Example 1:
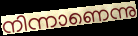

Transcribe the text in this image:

നിന്നാണെന്നു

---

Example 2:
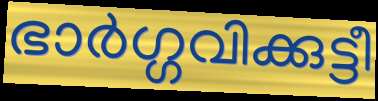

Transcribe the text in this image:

ഭാർഗ്ഗവിക്കുട്ടീ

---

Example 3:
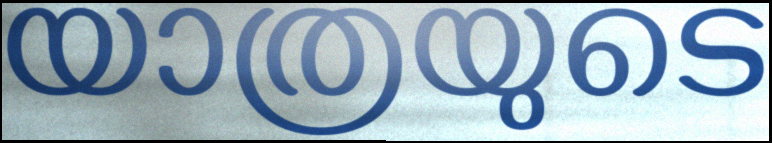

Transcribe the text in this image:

യാത്രയുടെ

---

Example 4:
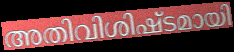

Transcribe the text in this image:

അതിവിശിഷ്ടമായി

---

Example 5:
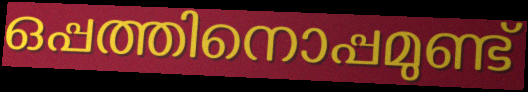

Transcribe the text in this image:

ഒപ്പത്തിനൊപ്പമുണ്ട്